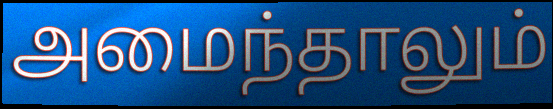
அமைந்தாலும்